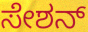
ಸೇಶನ್